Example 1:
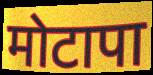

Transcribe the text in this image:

मोटापा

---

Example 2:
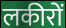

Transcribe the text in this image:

लकीरों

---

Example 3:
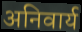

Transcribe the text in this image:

अनिवार्य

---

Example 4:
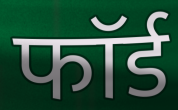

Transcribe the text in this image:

फॉर्ड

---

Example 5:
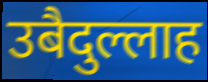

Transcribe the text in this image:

उबैदुल्लाह